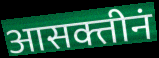
आसक्तीनं